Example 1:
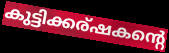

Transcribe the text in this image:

കുട്ടിക്കര്ഷകന്റെ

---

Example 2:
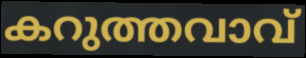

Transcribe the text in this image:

കറുത്തവാവ്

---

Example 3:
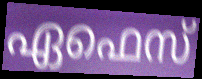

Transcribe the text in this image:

ഏഫെസ്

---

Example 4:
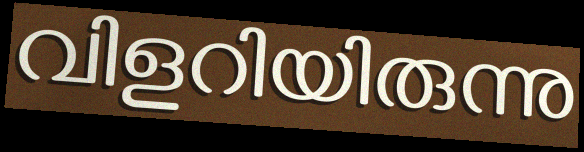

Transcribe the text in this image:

വിളറിയിരുന്നു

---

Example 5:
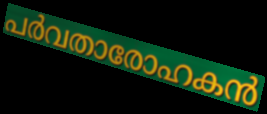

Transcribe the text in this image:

പർവതാരോഹകൻ